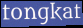
tongkat